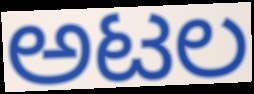
ಅಟಲ